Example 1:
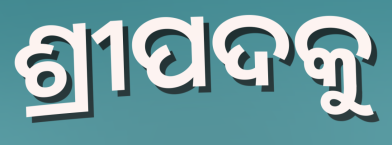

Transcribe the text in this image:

ଶ୍ରୀପଦକୁ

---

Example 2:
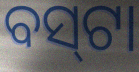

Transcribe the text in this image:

ବସ୍‍ଟା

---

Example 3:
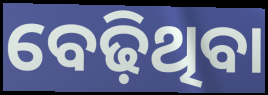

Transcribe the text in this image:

ବେଢ଼ିଥିବା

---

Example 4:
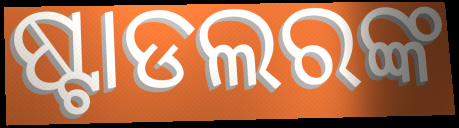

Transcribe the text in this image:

ଷ୍ଟାଡଲରଙ୍କ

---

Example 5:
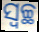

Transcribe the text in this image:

ସ୍ଵଚ୍ଛ